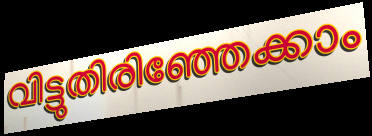
വിട്ടുതിരിഞ്ഞേക്കാം